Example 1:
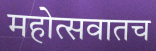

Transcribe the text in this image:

महोत्सवातच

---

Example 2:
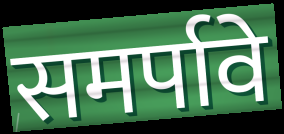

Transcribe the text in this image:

समर्पावे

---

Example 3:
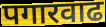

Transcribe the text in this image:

पगारवाढ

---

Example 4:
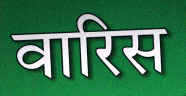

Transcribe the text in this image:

वारिस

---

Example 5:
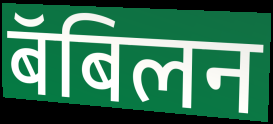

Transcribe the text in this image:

बॅबिलन